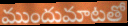
ముందుమాటతో